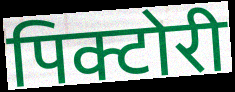
पिक्टोरी